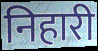
निहारी